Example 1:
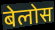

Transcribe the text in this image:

बेलोस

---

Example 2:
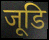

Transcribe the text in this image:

जूडि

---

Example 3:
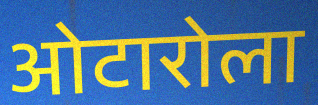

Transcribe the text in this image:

ओटारोला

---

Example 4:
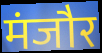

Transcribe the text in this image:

मंजौर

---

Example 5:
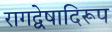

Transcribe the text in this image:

रागद्वेषादिरूप